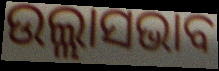
ଉଲ୍ଲାସଭାବ